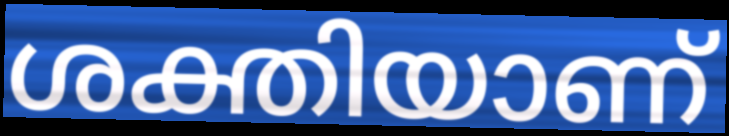
ശക്തിയാണ്